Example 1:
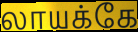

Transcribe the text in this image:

லாயக்கே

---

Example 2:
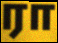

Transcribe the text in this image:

ரா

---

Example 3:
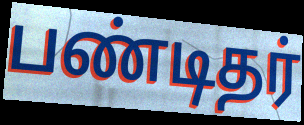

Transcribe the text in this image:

பண்டிதர்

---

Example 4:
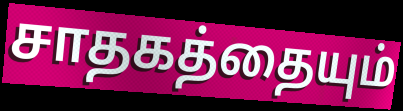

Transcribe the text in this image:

சாதகத்தையும்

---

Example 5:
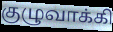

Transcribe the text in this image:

குழுவாக்கி